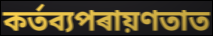
কৰ্তব্যপৰায়ণতাত